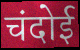
चंदोई